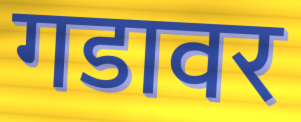
गडावर